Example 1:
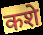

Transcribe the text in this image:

कशे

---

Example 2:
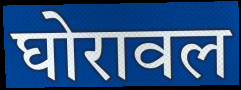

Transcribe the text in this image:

घोरावल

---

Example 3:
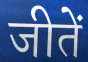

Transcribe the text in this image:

जीतें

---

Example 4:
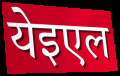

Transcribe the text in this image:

येइएल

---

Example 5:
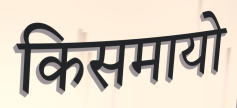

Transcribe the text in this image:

किसमायो